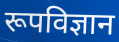
रूपविज्ञान